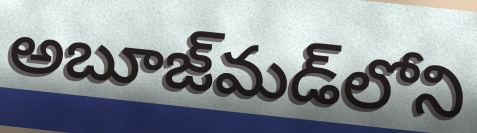
అబూజ్‌మడ్‌లోని